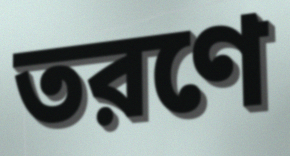
তরণে